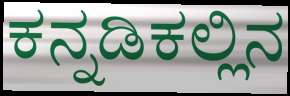
ಕನ್ನಡಿಕಲ್ಲಿನ